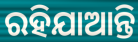
ରହିଯାଆନ୍ତି